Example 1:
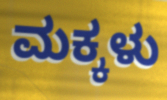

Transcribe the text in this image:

ಮಕ್ಕಳು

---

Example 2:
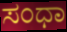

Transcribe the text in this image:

ಸಂಧಾ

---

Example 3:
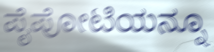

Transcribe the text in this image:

ಪೈಪೋಟಿಯನ್ನೂ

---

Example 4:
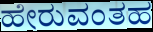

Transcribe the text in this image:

ಹೇರುವಂತಹ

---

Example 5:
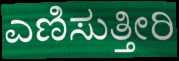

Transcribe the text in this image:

ಎಣಿಸುತ್ತೀರಿ